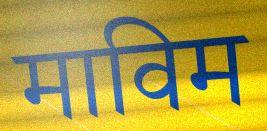
माविम